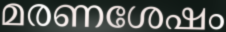
മരണശേഷം